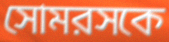
সোমরসকে